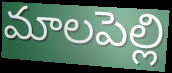
మాలపెల్లి